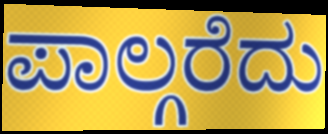
ಪಾಲ್ಗರೆದು